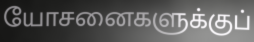
யோசனைகளுக்குப்